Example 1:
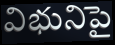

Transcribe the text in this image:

విభునిపై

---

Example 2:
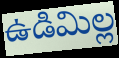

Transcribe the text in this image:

ఉడిమిల్ల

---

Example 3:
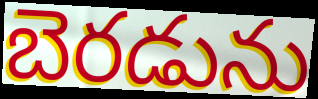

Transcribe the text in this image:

బెరడును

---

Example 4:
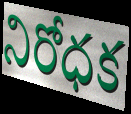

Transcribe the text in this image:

నిరోధక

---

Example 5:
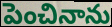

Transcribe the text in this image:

పెంచినాను